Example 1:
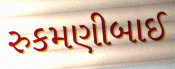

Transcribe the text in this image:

રુકમણીબાઈ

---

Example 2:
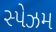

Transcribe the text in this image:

સ્પેઝમ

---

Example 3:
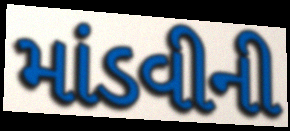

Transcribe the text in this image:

માંડવીની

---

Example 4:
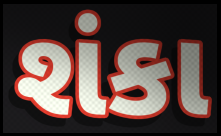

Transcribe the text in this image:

શંકા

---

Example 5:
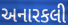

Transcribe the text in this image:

અનારકલી